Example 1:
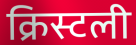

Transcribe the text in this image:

क्रिस्टली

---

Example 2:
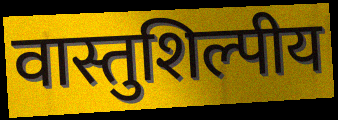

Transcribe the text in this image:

वास्तुशिल्पीय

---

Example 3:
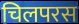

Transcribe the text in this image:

चिलपरस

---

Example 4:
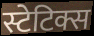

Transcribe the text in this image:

स्टेटिक्स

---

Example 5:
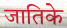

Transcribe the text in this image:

जातिके